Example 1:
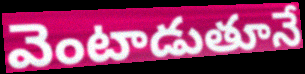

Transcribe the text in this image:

వెంటాడుతూనే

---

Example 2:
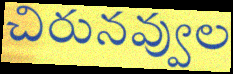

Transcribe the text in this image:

చిరునవ్వుల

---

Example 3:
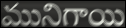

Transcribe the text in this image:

మునిగాయి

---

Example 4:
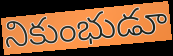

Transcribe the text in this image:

నికుంభుడూ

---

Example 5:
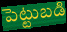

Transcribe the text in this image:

పెట్టుబడి